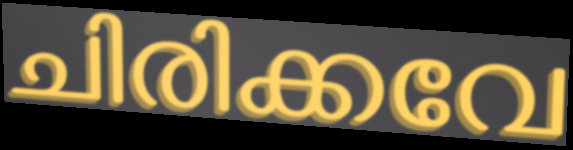
ചിരിക്കവേ